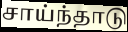
சாய்ந்தாடு